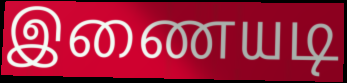
இணையடி